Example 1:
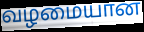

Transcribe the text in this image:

வழமையான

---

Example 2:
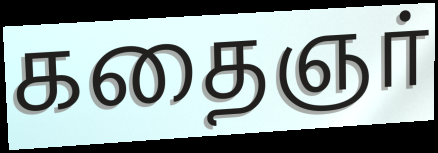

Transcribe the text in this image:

கதைஞர்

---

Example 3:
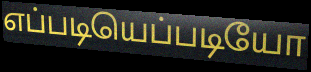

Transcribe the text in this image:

எப்படியெப்படியோ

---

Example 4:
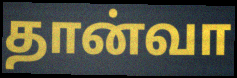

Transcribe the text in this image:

தான்வா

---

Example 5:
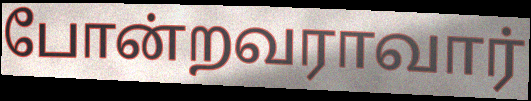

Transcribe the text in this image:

போன்றவராவார்